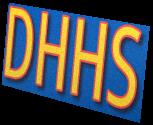
DHHS